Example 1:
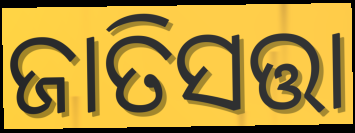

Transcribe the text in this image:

ଜାତିସତ୍ତା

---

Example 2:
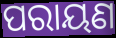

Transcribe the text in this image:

ପରାୟଣ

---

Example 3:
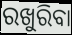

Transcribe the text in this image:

ରଖୁରିବା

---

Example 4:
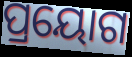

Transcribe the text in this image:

ପ୍ରୟୋଗ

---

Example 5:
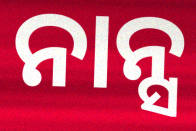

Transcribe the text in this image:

ନାନ୍ସ